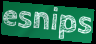
esnips